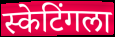
स्केटिंगला